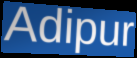
Adipur